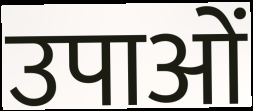
उपाओं